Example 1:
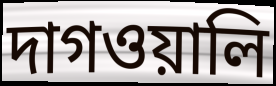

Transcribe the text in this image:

দাগওয়ালি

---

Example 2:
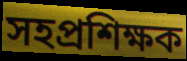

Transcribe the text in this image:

সহপ্রশিক্ষক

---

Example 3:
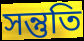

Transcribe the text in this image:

সন্তুতি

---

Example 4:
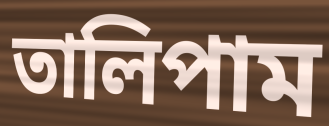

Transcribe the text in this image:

তালিপাম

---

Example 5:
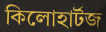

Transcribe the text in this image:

কিলোহার্টজ